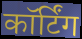
कॉर्टिंग